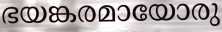
ഭയങ്കരമായോരു